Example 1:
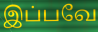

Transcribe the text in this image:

இப்பவே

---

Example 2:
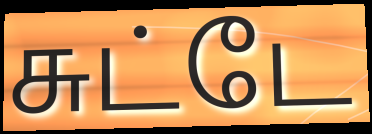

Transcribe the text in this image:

சுட்டே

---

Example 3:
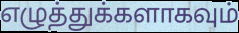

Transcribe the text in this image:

எழுத்துக்களாகவும்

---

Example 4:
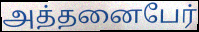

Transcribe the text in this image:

அத்தனைபேர்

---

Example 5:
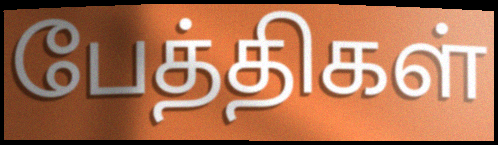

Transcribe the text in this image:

பேத்திகள்